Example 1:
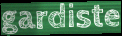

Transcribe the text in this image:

gardiste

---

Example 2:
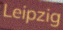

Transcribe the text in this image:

Leipzig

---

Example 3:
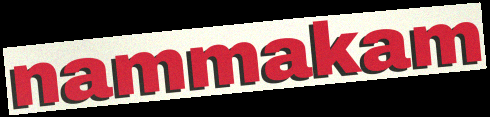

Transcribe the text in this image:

nammakam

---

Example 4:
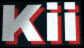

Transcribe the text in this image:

Kii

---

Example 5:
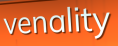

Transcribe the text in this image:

venality